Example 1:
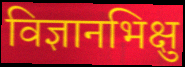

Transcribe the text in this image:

विज्ञानभिक्षु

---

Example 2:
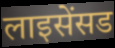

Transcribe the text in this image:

लाइसेंसड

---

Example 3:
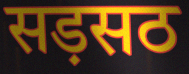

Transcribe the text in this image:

सड़सठ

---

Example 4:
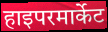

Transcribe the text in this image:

हाइपरमार्केट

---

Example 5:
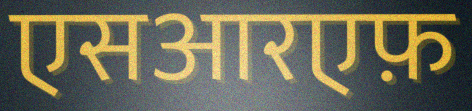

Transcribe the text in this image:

एसआरएफ़